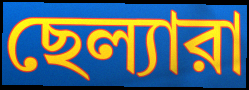
ছেল্যারা